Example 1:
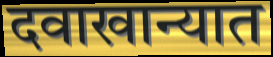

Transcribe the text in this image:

दवाखान्यात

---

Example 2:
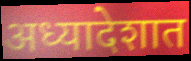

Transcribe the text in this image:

अध्यादेशात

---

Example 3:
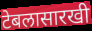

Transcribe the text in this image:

टेबलासारखी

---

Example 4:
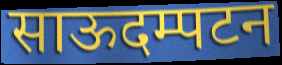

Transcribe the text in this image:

साऊदम्पटन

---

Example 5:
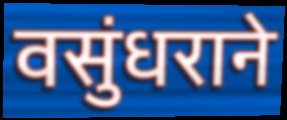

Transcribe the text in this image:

वसुंधराने